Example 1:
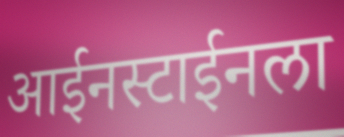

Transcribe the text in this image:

आईनस्टाईनला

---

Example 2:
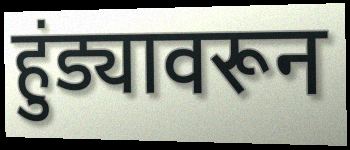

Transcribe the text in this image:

हुंड्यावरून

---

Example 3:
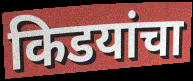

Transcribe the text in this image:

किडयांचा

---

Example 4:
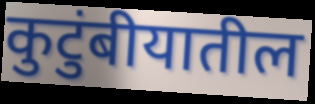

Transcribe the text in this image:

कुटुंबीयातील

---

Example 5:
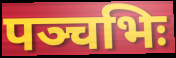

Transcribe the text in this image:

पञ्चभिः